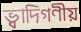
ভ্বাদিগণীয়